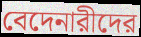
বেদেনারীদের